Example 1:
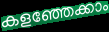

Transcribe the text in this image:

കളഞ്ഞേക്കാം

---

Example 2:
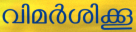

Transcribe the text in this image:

വിമർശിക്കൂ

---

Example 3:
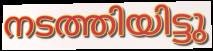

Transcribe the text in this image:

നടത്തിയിട്ടു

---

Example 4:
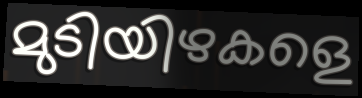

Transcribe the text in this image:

മുടിയിഴകളെ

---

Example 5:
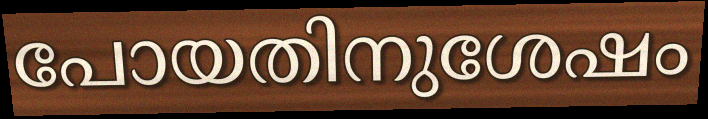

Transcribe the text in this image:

പോയതിനുശേഷം